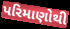
પરિમાણોથી